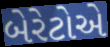
બેરેટોએ